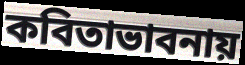
কবিতাভাবনায়